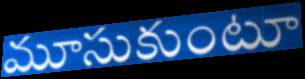
మూసుకుంటూ